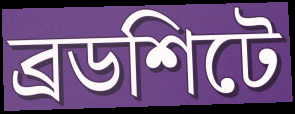
ব্রডশিটে